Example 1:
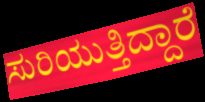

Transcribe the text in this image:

ಸುರಿಯುತ್ತಿದ್ದಾರೆ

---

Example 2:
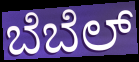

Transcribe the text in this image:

ಬೆಬೆಲ್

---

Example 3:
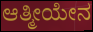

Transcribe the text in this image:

ಆತ್ಮೀಯೇನ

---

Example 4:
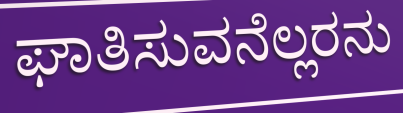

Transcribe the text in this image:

ಘಾತಿಸುವನೆಲ್ಲರನು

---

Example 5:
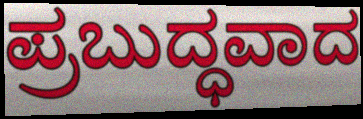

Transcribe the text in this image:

ಪ್ರಬುದ್ಧವಾದ